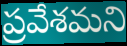
ప్రవేశమని